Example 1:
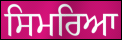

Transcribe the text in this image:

ਸਿਮਰਿਆ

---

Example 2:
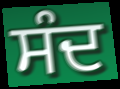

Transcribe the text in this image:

ਸੰਦ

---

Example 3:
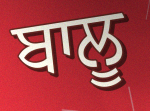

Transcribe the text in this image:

ਬਾਲੂ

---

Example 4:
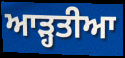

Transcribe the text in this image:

ਆੜ੍ਹਤੀਆ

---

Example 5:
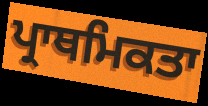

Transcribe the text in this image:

ਪ੍ਰਾਥਮਿਕਤਾ